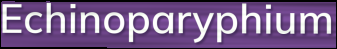
Echinoparyphium